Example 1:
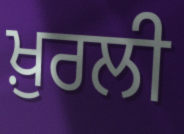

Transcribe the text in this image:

ਖ਼ੁਰਲੀ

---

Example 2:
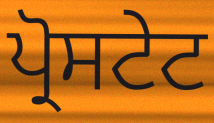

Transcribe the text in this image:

ਪ੍ਰੋਸਟੇਟ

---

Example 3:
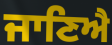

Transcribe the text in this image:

ਜਾਣਿਐ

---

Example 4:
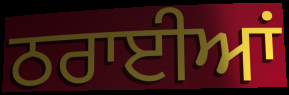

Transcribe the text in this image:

ਠਰਾਈਆਂ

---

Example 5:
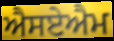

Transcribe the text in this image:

ਐਸਏਐਮ